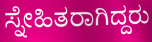
ಸ್ನೇಹಿತರಾಗಿದ್ದರು